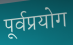
पूर्वप्रयोग